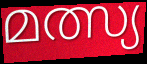
മത്സ്യ